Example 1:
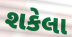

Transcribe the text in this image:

શકેલા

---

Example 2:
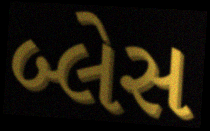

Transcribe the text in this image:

બ્લેસ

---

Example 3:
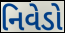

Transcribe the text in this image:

નિવેડો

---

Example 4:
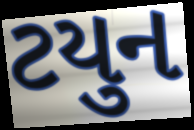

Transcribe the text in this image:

ટયુન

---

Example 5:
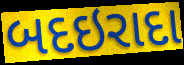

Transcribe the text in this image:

બદઇરાદા